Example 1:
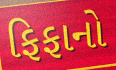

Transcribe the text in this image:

ફિફાનો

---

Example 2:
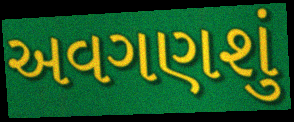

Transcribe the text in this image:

અવગણશું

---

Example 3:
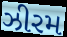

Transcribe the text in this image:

ઝીરમ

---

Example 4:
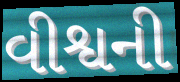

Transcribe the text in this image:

વીશ્વની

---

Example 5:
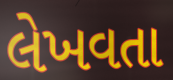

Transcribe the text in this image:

લેખવતા